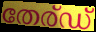
തേര്ഡ്